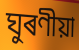
ঘুৰণীয়া